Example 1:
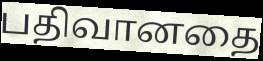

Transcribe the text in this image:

பதிவானதை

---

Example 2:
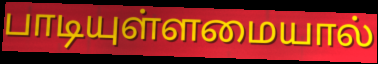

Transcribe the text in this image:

பாடியுள்ளமையால்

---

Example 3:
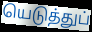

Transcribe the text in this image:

யெடுத்துப்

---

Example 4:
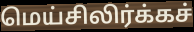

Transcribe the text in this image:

மெய்சிலிர்க்கச்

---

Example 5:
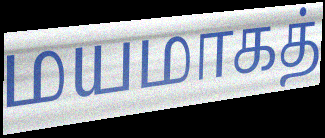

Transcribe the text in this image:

மயமாகத்